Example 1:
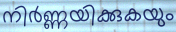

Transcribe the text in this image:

നിർണ്ണയിക്കുകയും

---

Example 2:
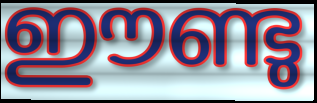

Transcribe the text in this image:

ഈണ്ടു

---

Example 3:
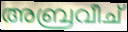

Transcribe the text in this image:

അബ്രവീച്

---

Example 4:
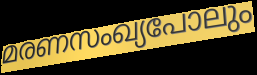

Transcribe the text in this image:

മരണസംഖ്യപോലും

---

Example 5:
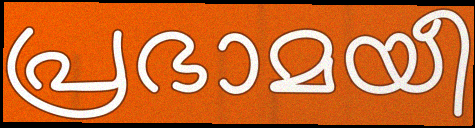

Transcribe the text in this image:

പ്രഭാമയീ